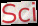
Sci